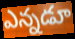
ఎన్నడూ